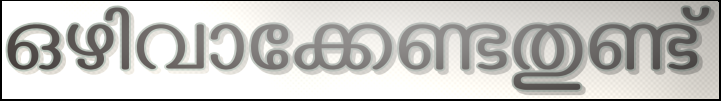
ഒഴിവാക്കേണ്ടതുണ്ട്